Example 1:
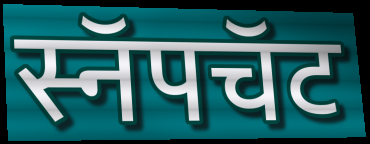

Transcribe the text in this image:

स्नॅपचॅट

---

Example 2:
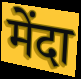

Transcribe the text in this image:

मेंदा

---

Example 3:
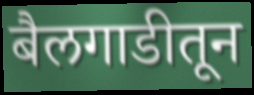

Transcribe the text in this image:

बैलगाडीतून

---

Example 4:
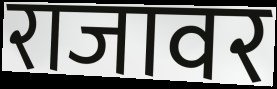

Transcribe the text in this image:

राजावर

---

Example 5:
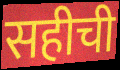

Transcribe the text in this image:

सहीची